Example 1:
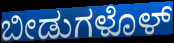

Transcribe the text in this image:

ಬೀಡುಗಳೊಳ್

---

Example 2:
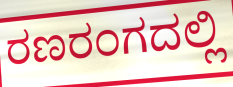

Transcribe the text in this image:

ರಣರಂಗದಲ್ಲಿ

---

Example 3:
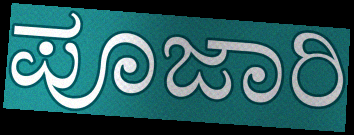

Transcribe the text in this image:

ಪೂಜಾರಿ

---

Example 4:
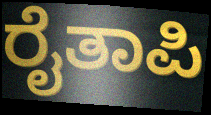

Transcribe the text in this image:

ರೈತಾಪಿ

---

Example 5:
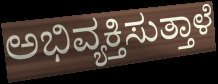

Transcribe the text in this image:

ಅಭಿವ್ಯಕ್ತಿಸುತ್ತಾಳೆ